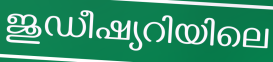
ജുഡീഷ്യറിയിലെ